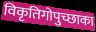
विकृतिगोपुच्छाका